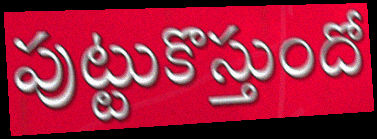
పుట్టుకొస్తుందో